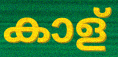
കാള്